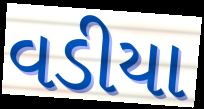
વડીયા